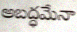
అబద్ధమేనా